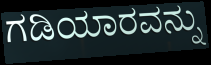
ಗಡಿಯಾರವನ್ನು